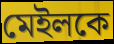
মেইলকে